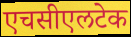
एचसीएलटेक